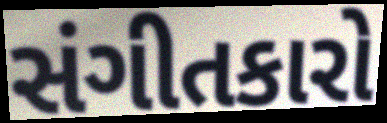
સંગીતકારો